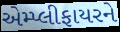
એમ્પ્લીફાયરને